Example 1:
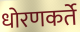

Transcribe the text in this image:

धोरणकर्ते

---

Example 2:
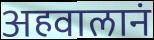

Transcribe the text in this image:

अहवालानं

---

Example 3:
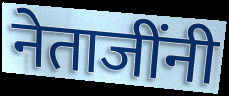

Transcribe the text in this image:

नेताजींनी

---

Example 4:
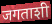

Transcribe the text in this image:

जगताशी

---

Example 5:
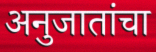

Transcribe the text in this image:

अनुजातांचा